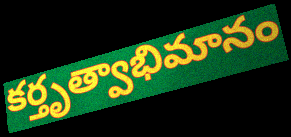
కర్తృత్వాభిమానం